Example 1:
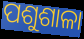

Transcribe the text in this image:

ପଶୁଶାଳା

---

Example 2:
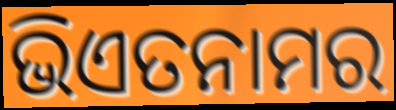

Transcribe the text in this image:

ଭିଏତନାମର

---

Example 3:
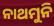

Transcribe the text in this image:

ନାଥମୁନି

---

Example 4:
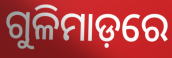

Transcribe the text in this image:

ଗୁଳିମାଡ଼ରେ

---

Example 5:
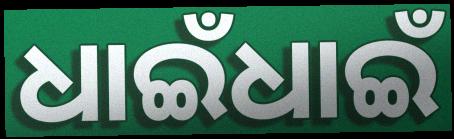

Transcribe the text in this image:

ଧାଇଁଧାଇଁ